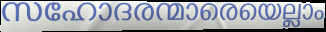
സഹോദരന്മാരെയെല്ലാം